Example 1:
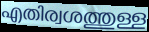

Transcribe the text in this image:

എതിര്വശത്തുള്ള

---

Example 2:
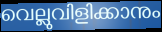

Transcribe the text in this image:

വെല്ലുവിളിക്കാനും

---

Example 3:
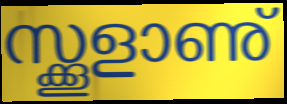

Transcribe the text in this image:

സ്ക്കൂളാണു്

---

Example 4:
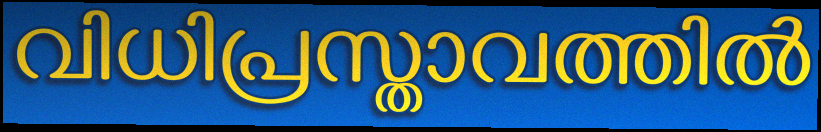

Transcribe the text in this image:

വിധിപ്രസ്താവത്തിൽ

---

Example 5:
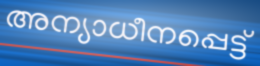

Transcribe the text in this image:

അന്യാധീനപ്പെട്ട്